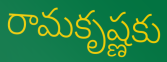
రామకృష్ణకు